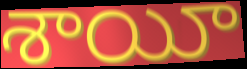
శాయీ